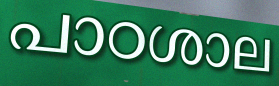
പാഠശാല